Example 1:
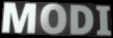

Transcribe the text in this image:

MODI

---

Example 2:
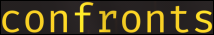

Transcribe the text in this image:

confronts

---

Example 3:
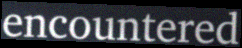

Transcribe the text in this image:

encountered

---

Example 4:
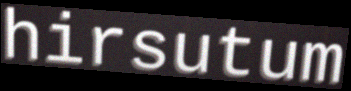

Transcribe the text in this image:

hirsutum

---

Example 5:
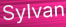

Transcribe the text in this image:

Sylvan